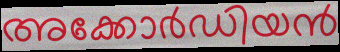
അക്കോർഡിയൻ